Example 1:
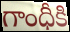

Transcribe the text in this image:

గాంధీకి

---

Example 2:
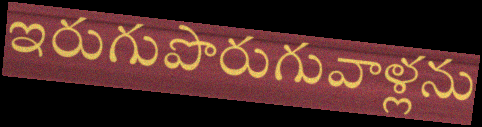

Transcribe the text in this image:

ఇరుగుపొరుగువాళ్లను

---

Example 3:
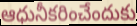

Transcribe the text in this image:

ఆధునీకరించేందుకు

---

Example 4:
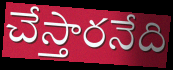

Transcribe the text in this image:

చేస్తారనేది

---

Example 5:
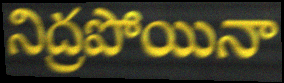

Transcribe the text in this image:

నిద్రపోయినా